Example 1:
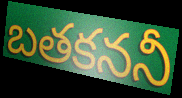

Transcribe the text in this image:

బతకననీ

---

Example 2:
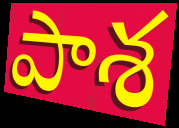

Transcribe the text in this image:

పాశ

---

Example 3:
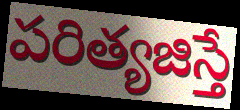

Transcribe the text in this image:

పరిత్యజిస్తే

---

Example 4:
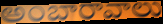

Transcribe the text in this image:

అంబారావాలు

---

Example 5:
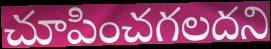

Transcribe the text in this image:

చూపించగలదని